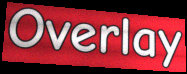
Overlay